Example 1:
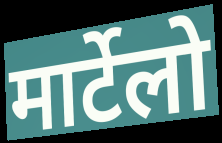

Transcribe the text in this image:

मार्टेलो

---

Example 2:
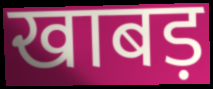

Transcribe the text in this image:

खाबड़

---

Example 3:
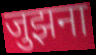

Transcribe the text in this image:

जुझना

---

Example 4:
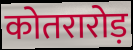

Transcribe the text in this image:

कोतरारोड़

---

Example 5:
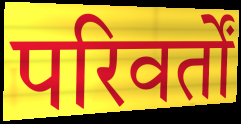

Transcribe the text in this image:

परिवर्तों